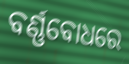
ବର୍ଣ୍ଣବୋଧରେ